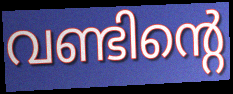
വണ്ടിന്റെ